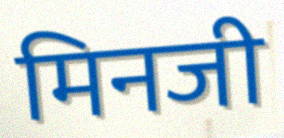
मिनजी